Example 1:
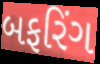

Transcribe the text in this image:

બફરિંગ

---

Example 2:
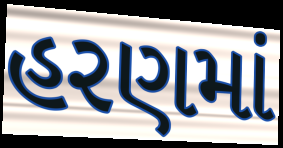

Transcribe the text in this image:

હરણમાં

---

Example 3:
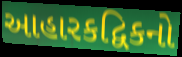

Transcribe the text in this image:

આહારકદ્વિકનો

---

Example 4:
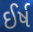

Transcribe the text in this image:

ઈર્ષ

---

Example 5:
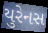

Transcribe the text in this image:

યુરેનસ